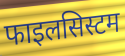
फाइलसिस्टम